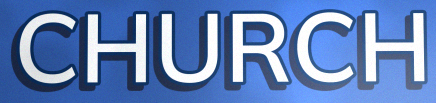
CHURCH